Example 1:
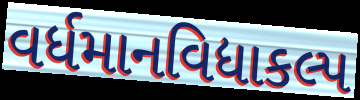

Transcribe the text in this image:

વર્ધમાનવિદ્યાકલ્પ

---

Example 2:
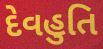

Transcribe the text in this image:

દેવહુતિ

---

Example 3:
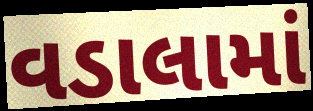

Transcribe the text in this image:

વડાલામાં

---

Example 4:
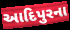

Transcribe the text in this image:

આદિપુરના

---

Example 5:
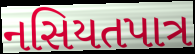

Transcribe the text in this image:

નસિયતપાત્ર